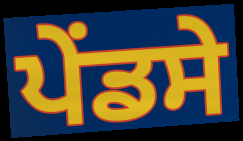
ਪੇਂਡਸੇ